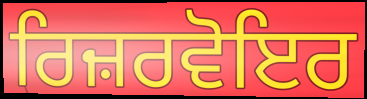
ਰਿਜ਼ਰਵੋਇਰ